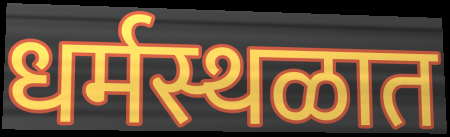
धर्मस्थळात